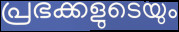
പ്രഭക്കളുടെയും